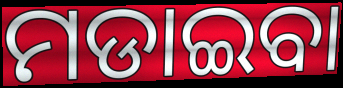
ମଡାଇବା